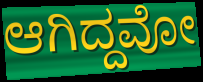
ಆಗಿದ್ದವೋ